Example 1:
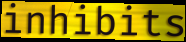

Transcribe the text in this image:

inhibits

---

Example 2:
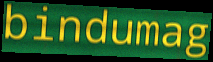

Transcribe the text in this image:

bindumag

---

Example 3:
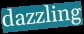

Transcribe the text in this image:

dazzling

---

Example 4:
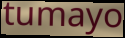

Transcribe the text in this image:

tumayo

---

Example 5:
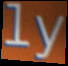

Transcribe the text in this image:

ly